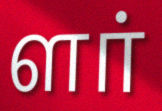
ளர்